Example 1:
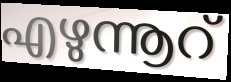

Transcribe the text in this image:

എഴുന്നൂറ്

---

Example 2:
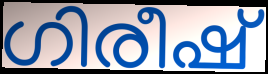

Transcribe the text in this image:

ഗിരീഷ്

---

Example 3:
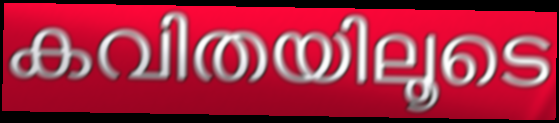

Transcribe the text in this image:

കവിതയിലൂടെ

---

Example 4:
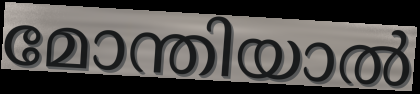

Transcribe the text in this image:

മോന്തിയാൽ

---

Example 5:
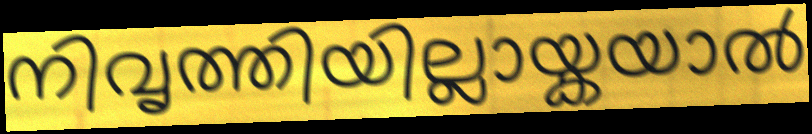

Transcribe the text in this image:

നിവൃത്തിയില്ലായ്കയാൽ